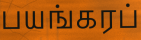
பயங்கரப்